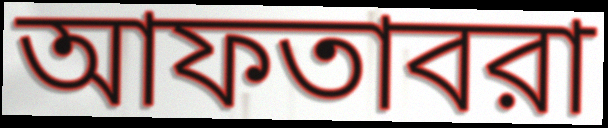
আফতাবরা